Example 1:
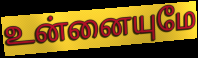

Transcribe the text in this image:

உன்னையுமே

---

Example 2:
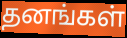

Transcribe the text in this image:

தனங்கள்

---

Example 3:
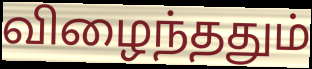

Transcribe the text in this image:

விழைந்ததும்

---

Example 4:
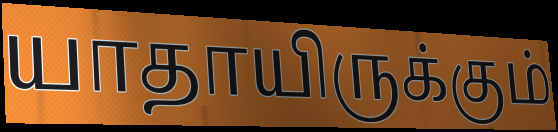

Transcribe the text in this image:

யாதாயிருக்கும்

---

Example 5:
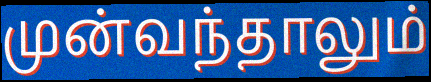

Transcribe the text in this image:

முன்வந்தாலும்